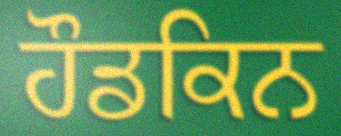
ਹੌਡਕਿਨ